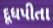
દૂધપીતા